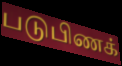
படுபிணக்